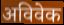
अविवेक